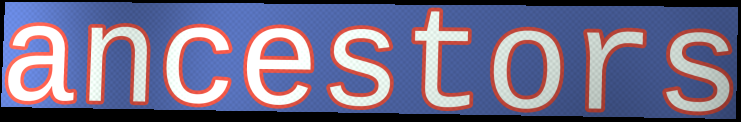
ancestors